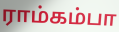
ராம்கம்பா